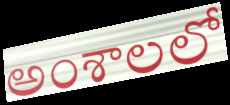
అంశాలలో